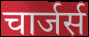
चार्जर्स